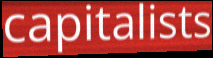
capitalists